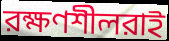
রক্ষণশীলরাই